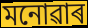
মনোৱাৰ